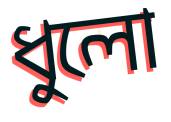
ধুলো